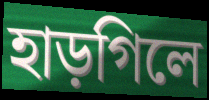
হাড়গিলে